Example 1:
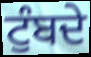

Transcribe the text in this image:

ਟੁੰਬਦੇ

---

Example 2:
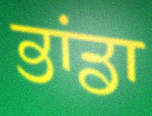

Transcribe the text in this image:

ਭਾਂਡਾ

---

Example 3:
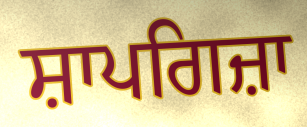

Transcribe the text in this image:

ਸ਼ਾਪਗਿਜ਼ਾ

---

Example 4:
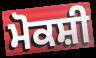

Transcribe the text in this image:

ਮੋਕਸ਼ੀ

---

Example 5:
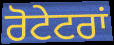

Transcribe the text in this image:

ਰੋਟੇਟਰਾਂ